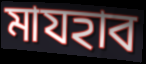
মাযহাব